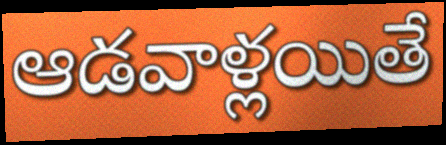
ఆడవాళ్లయితే